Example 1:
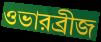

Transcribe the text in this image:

ওভারব্রীজ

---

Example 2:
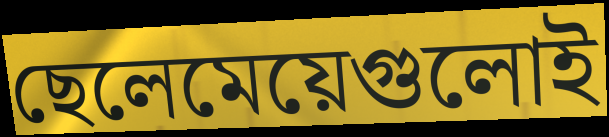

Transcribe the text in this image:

ছেলেমেয়েগুলোই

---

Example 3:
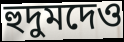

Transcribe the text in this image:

হুদুমদেও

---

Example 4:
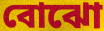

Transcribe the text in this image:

বোঝো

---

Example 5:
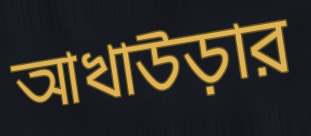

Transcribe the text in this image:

আখাউড়ার